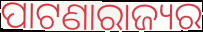
ପାଟଣାରାଜ୍ୟର